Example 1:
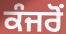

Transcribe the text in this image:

ਕੰਜਰੋਂ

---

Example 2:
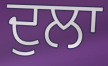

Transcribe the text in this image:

ਦੁਲਾ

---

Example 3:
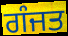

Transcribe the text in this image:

ਗੰਜਤ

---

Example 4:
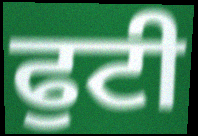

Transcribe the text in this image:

ਫੁਟੀ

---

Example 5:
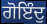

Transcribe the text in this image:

ਗੋਇੰਦੁ